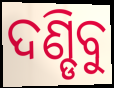
ଦଣ୍ଡିବୁ